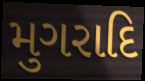
મુગરાદિ